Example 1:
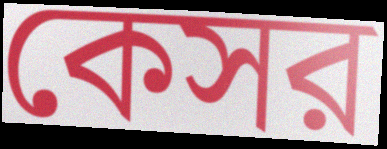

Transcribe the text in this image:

কেসর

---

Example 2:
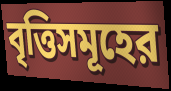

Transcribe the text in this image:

বৃত্তিসমূহের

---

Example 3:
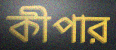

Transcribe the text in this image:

কীপার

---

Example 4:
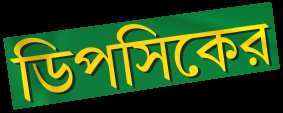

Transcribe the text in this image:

ডিপসিকের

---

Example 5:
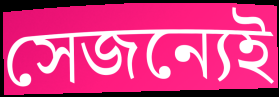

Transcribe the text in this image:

সেজন্যেই